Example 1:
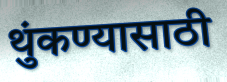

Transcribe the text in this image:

थुंकण्यासाठी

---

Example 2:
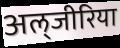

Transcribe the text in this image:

अल्जीरिया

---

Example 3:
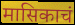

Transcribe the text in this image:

मासिकाचं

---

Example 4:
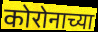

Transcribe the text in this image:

कोरोनाच्या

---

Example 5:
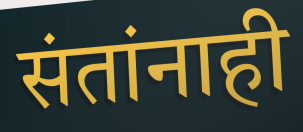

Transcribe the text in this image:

संतांनाही